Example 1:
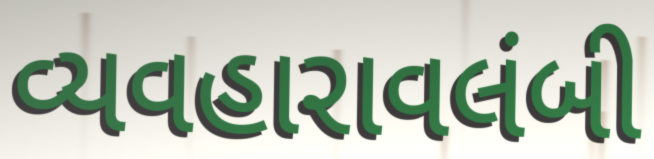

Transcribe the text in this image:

વ્યવહારાવલંબી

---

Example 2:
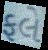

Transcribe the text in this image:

ફલે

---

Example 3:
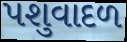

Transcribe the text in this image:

પશુવાદળ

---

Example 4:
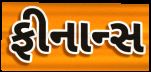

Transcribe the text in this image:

ફીનાન્સ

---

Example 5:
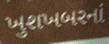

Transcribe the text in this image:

ખુશખબરનાં